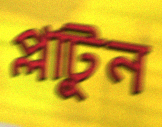
প্লাটুন